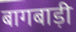
बागबाड़ी